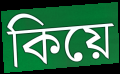
কিয়ে